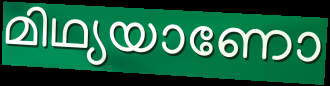
മിഥ്യയാണോ